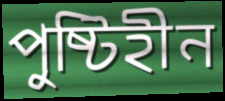
পুষ্টিহীন